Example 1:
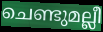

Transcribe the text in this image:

ചെണ്ടുമല്ലീ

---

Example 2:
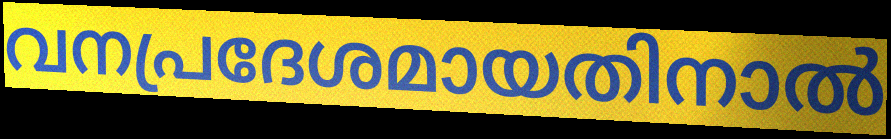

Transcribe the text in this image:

വനപ്രദേശമായതിനാൽ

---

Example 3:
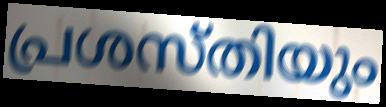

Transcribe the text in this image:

പ്രശസ്തിയും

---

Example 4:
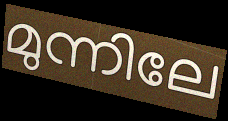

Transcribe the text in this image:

മുന്നിലേ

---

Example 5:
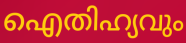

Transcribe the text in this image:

ഐതിഹ്യവും